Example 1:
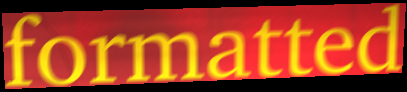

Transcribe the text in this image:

formatted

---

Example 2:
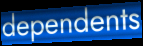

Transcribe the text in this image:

dependents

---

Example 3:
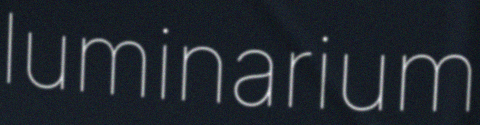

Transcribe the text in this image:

luminarium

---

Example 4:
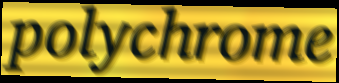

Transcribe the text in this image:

polychrome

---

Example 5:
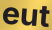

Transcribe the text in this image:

eut